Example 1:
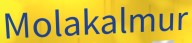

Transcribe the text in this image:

Molakalmur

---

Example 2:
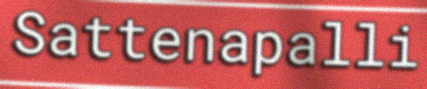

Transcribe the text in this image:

Sattenapalli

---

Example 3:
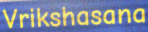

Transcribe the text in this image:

Vrikshasana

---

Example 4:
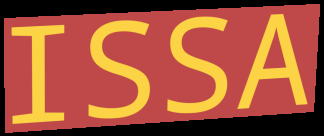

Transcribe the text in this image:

ISSA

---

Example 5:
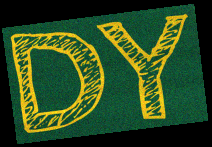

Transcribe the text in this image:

DY